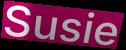
Susie